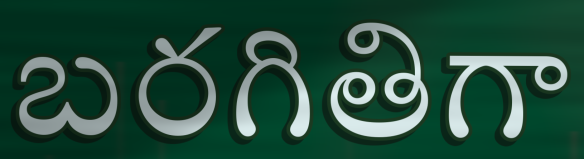
బరగితిగా